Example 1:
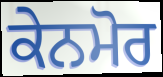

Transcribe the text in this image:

ਕੇਨਮੋਰ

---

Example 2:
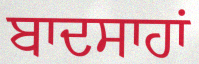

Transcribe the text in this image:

ਬਾਦਸਾਹਾਂ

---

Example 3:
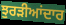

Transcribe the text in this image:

ਝੁਰੜੀਆਂਦਾਰ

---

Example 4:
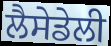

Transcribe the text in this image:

ਲੈਸੇਡੇਲੀ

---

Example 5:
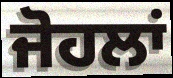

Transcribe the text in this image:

ਜੋਹਲਾਂ